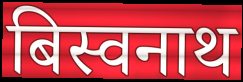
बिस्वनाथ